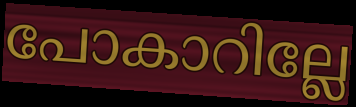
പോകാറില്ലേ